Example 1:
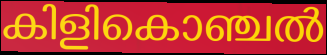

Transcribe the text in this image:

കിളികൊഞ്ചൽ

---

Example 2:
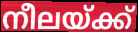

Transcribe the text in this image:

നീലയ്ക്ക്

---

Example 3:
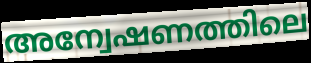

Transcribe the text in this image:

അന്വേഷണത്തിലെ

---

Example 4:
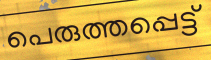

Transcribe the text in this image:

പെരുത്തപ്പെട്ട്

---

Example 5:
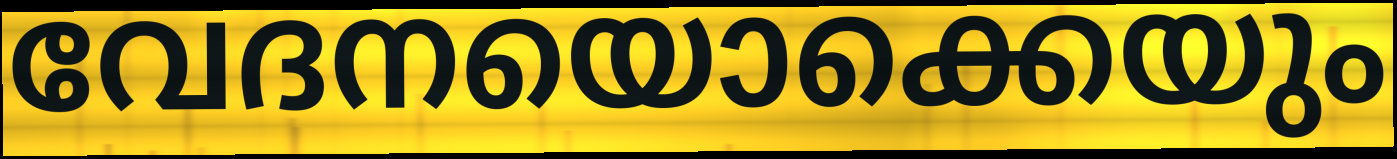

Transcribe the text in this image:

വേദനയൊക്കെയും